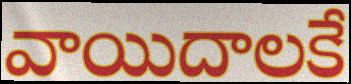
వాయిదాలకే